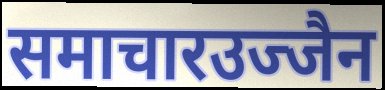
समाचारउज्जैन